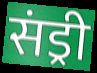
संड्री